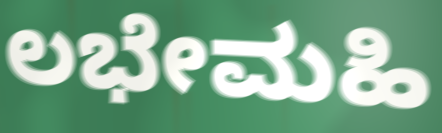
ಲಭೇಮಹಿ